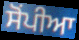
ਸੋਂਪੀਆ